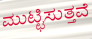
ಮುಟ್ಟಿಸುತ್ತವೆ